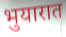
भुयारात